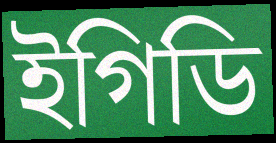
ইগিডি